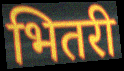
भितरी